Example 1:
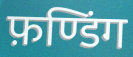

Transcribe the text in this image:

फ़ण्डिंग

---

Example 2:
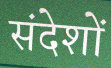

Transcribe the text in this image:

संदेशों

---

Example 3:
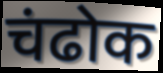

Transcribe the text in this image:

चंढोक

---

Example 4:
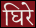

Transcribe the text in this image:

घिरे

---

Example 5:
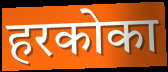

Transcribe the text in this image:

हरकोका